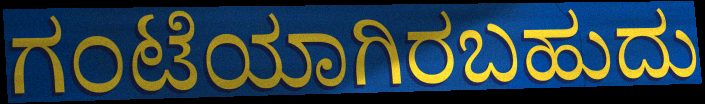
ಗಂಟೆಯಾಗಿರಬಹುದು